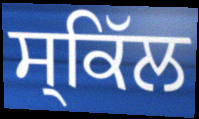
ਸ੍ਕਿੱਲ